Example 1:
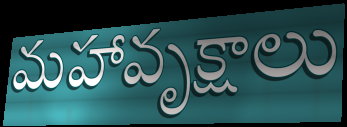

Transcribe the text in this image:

మహావృక్షాలు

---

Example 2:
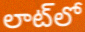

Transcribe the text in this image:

లాట్‌లో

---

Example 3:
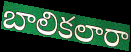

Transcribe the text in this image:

బాలికలారా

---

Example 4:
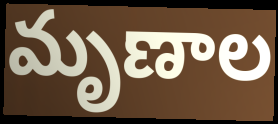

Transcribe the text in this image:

మృణాల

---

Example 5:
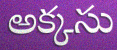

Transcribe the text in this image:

అక్కసు